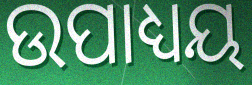
ଉପାଧ୍ୟୟ